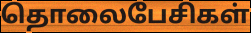
தொலைபேசிகள்